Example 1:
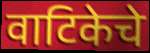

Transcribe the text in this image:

वाटिकेचे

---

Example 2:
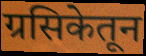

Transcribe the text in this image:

ग्रसिकेतून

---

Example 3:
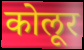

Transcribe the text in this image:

कोलूर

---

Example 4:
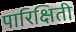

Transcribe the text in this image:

पारिक्षिती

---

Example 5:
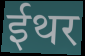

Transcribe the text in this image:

ईथर